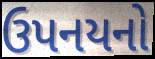
ઉપનયનો